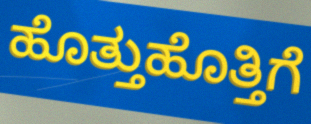
ಹೊತ್ತುಹೊತ್ತಿಗೆ